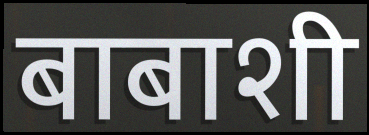
बाबाशी